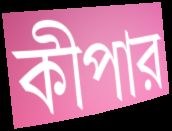
কীপার